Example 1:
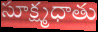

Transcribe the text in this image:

సూక్ష్మధాతు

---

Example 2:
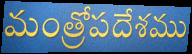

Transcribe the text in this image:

మంత్రోపదేశము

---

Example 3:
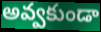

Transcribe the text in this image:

అవ్వకుండా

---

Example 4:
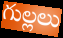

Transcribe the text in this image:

గుల్లలు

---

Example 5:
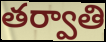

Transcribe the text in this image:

తర్వాతి